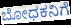
ಬೋಧಕನಿಗೆ